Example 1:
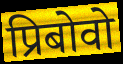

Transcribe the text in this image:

प्रिबोवो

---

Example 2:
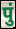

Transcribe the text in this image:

पुं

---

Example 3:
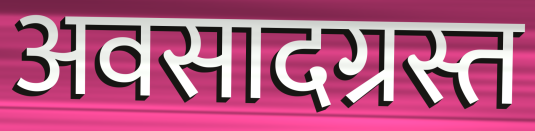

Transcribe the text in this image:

अवसादग्रस्त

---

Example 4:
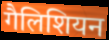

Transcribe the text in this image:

गैलिशियन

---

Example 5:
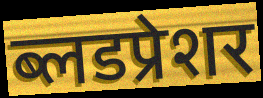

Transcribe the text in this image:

ब्लडप्रेशर